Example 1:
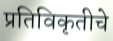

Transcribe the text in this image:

प्रतिविकृतीचे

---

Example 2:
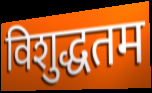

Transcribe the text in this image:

विशुद्धतम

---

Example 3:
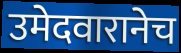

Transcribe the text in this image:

उमेदवारानेच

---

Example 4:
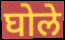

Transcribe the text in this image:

घोले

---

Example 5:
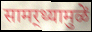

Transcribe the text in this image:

सामर्थ्यामुळें